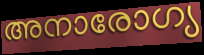
അനാരോഗ്യ